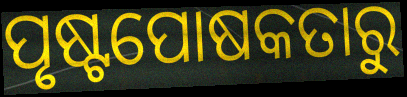
ପୃଷ୍ଟପୋଷକତାରୁ